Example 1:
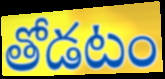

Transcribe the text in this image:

తోడటం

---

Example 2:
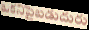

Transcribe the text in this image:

ఒకనిపైబడుదురు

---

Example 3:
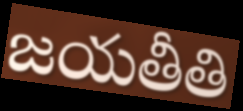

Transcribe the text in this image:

జయతీతి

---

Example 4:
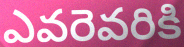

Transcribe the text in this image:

ఎవరెవరికి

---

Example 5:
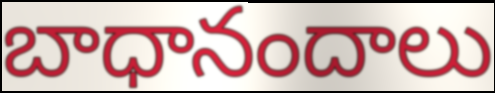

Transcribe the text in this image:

బాధానందాలు